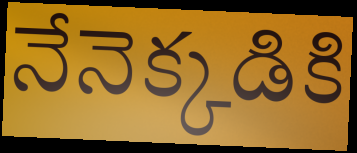
నేనెక్కడికి